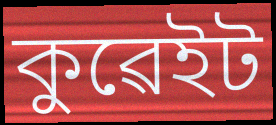
কুৱেইট